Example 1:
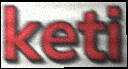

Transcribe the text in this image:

keti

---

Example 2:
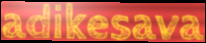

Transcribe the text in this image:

adikesava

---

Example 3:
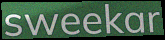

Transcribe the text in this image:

sweekar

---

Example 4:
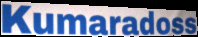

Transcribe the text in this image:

Kumaradoss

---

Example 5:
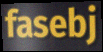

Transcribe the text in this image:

fasebj